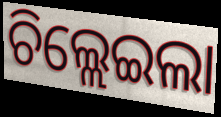
ଚିଲ୍ଲେଇଲା